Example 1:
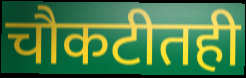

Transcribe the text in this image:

चौकटीतही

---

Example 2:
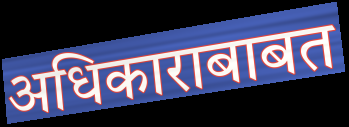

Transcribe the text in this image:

अधिकाराबाबत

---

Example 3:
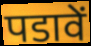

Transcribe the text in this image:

पडावें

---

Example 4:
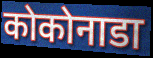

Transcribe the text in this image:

कोकोनाडा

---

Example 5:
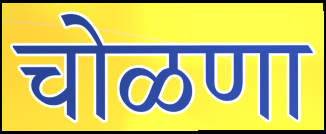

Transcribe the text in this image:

चोळणा